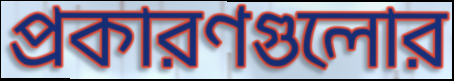
প্রকারণগুলোর